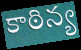
కాఠిన్య